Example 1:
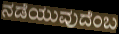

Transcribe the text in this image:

ನಡೆಯುವುದೆಂಬ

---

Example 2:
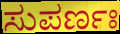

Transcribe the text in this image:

ಸುಪರ್ಣಃ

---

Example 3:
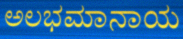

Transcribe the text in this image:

ಅಲಭಮಾನಾಯ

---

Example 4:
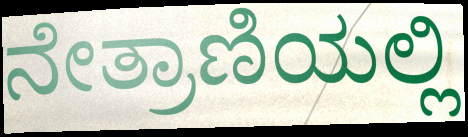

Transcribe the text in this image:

ನೇತ್ರಾಣಿಯಲ್ಲಿ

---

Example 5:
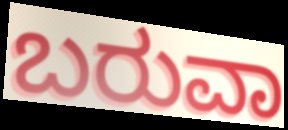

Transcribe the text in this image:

ಬರುವಾ